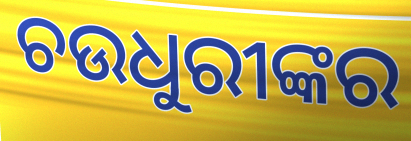
ଚଉଧୁରୀଙ୍କର